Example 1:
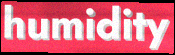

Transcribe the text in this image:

humidity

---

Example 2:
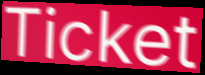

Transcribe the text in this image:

Ticket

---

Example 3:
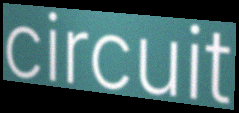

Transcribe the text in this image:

circuit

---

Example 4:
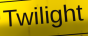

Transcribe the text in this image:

Twilight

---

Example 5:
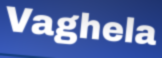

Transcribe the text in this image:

Vaghela